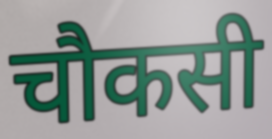
चौकसी